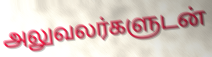
அலுவலர்களுடன்